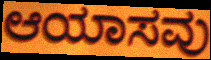
ಆಯಾಸವು